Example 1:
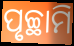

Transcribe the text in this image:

ପୃଚ୍ଛାମି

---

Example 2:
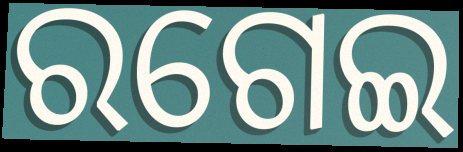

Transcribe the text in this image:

ରଗେଇ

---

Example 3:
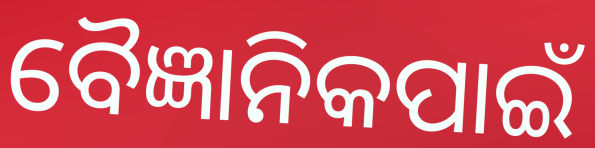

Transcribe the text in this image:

ବୈଜ୍ଞାନିକପାଇଁ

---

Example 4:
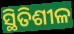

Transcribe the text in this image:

ସ୍ଥିତିଶୀଳ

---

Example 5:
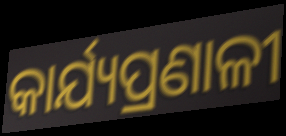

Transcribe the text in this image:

କାର୍ଯ୍ୟପ୍ରଣାଳୀ